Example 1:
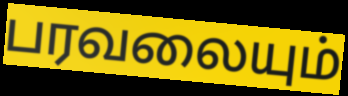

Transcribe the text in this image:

பரவலையும்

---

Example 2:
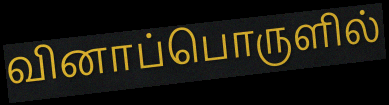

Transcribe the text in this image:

வினாப்பொருளில்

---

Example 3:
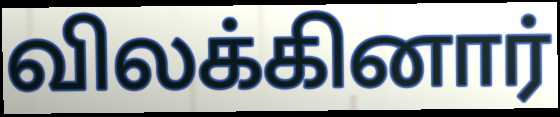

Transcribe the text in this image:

விலக்கினார்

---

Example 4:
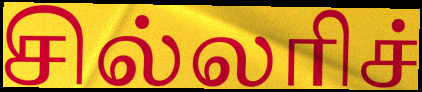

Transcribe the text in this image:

சில்லரிச்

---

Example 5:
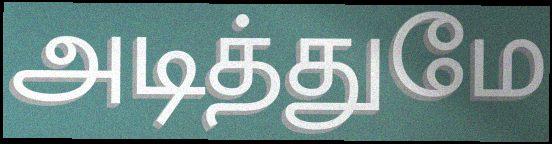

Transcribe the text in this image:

அடித்துமே